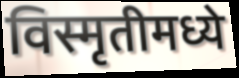
विस्मृतीमध्ये